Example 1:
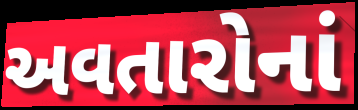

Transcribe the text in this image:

અવતારોનાં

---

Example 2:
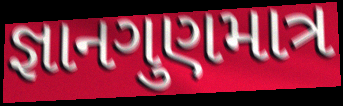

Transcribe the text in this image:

જ્ઞાનગુણમાત્ર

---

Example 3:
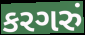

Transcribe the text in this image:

કરગરું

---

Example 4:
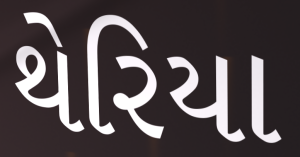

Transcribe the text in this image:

થેરિયા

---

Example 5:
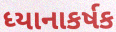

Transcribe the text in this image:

ધ્યાનાકર્ષક